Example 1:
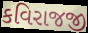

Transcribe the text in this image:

કવિરાજજી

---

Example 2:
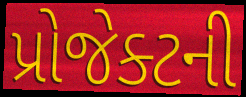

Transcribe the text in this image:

પ્રોજેક્ટની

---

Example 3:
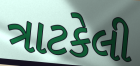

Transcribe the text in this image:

ત્રાટકેલી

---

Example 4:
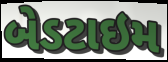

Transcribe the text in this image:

બેડટાઇમ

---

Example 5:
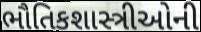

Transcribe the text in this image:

ભૌતિકશાસ્ત્રીઓની